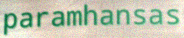
paramhansas